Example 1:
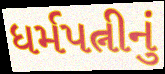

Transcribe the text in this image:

ધર્મપત્નીનું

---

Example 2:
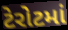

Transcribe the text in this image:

ટેરોટમાં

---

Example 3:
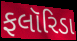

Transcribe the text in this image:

ફલૉરિડા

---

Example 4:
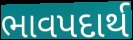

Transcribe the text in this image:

ભાવપદાર્થ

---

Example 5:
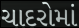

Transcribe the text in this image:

ચાદરોમાં